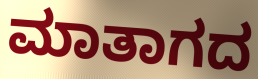
ಮಾತಾಗದ